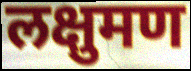
लक्षुमण